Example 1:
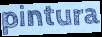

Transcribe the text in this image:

pintura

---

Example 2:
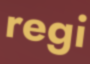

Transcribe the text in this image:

regi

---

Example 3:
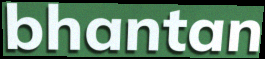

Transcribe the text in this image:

bhantan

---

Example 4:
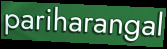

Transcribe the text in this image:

pariharangal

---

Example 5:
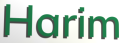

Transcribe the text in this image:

Harim